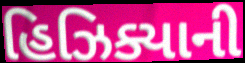
હિઝિક્યાની